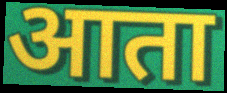
आता